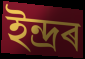
ইন্দ্ৰৰ